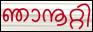
ഞാനൂറ്റി